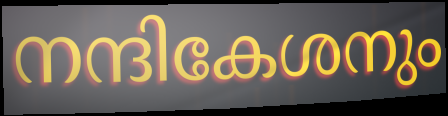
നന്ദികേശനും